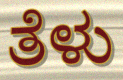
ತೆಳು